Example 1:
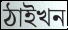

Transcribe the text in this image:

ঠাইখন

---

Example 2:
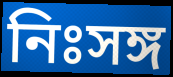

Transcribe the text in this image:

নিঃসঙ্গ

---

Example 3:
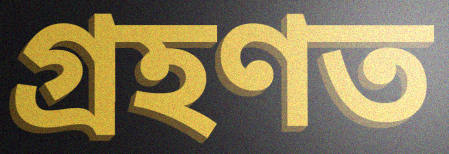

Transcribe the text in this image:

গ্ৰহণত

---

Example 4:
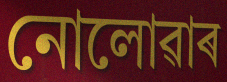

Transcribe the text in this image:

নোলোৱাৰ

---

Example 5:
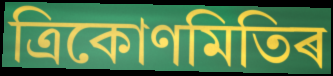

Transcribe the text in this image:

ত্ৰিকোণমিতিৰ